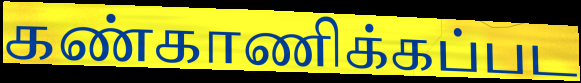
கண்காணிக்கப்பட